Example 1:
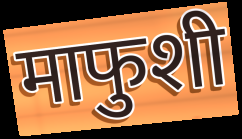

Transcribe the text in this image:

माफुशी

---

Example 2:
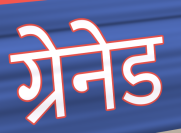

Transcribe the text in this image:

ग्रेनेड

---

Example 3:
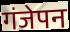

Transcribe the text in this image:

गंजेपन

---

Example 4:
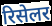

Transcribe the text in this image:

रिसेलर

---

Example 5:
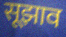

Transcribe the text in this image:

सूझाव